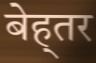
बेह्तर